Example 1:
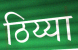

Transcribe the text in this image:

ठिय्या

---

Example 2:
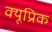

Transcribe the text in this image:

क्यूप्रिक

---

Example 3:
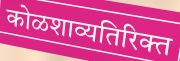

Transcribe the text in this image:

कोळशाव्यतिरिक्त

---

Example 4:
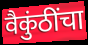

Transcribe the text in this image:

वैकुंठींचा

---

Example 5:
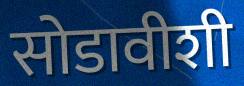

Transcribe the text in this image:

सोडावीशी